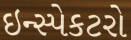
ઇન્સ્પેકટરો